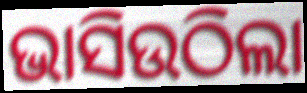
ଭାସିଉଠିଲା